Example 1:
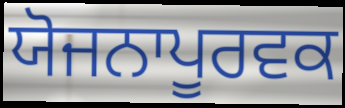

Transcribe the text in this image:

ਯੋਜਨਾਪੂਰਵਕ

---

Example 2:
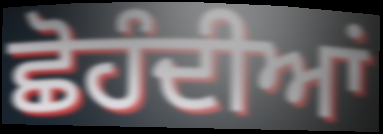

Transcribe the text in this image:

ਛੋਹੰਦੀਆਂ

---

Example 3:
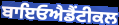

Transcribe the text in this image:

ਬਾਇਓਐਡੈਂਟੀਕਲ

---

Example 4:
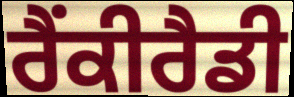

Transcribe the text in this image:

ਰੈਂਕੀਰੈਡੀ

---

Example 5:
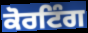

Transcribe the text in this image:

ਕੋਰਟਿੰਗ